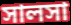
সালসা